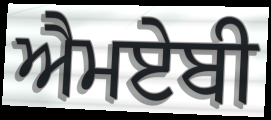
ਐਮਏਬੀ